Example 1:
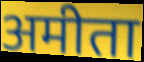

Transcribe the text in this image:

अमीता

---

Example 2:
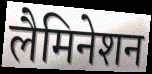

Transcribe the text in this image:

लैमिनेशन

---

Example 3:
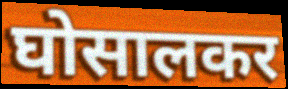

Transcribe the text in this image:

घोसालकर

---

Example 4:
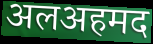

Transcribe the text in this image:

अलअहमद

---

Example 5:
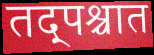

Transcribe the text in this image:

तद्पश्चात